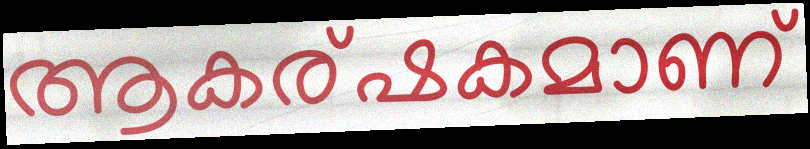
ആകര്ഷകമാണ്